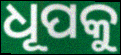
ଧୂପକୁ